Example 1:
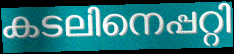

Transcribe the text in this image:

കടലിനെപ്പറ്റി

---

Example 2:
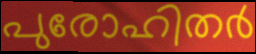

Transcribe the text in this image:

പുരോഹിതർ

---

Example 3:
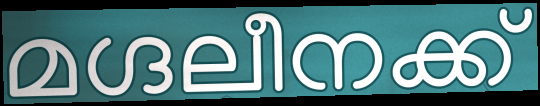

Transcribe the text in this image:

മഗ്ദലീനക്ക്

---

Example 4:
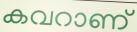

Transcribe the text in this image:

കവറാണ്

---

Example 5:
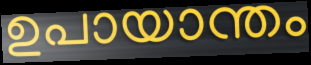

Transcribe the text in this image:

ഉപായാന്തം